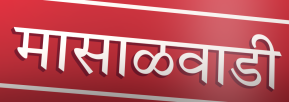
मासाळवाडी